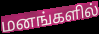
மனங்களில்